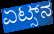
ಏಟ್ಸ್‌ನ